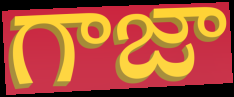
గాజా